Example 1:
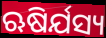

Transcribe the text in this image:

ଋଷିର୍ଯସ୍ୟ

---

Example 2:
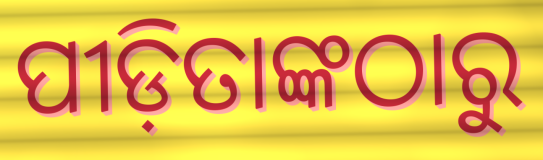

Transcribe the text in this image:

ପୀଡ଼ିତାଙ୍କଠାରୁ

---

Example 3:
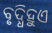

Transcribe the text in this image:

ବୃଦ୍ଧିହୁଏ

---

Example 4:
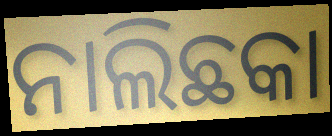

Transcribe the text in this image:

ନାଲିଛକା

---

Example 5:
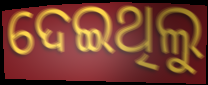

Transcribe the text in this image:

ଦେଇଥିଲୁ